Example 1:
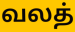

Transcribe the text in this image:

வலத்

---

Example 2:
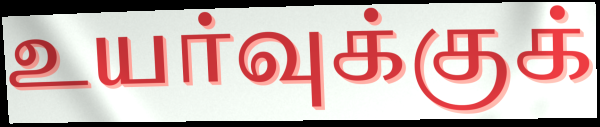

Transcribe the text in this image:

உயர்வுக்குக்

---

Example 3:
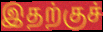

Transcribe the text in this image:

இதற்குச்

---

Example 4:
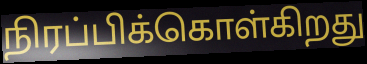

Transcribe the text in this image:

நிரப்பிக்கொள்கிறது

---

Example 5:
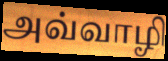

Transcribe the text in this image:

அவ்வாழி